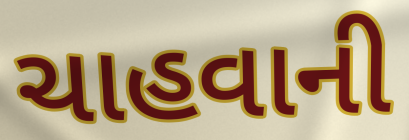
ચાહવાની